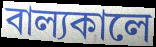
বাল্যকালে